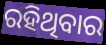
ରହିଥିବାର